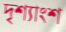
দৃশ্যাংশ